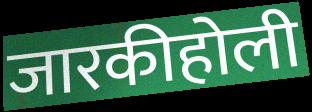
जारकीहोली